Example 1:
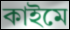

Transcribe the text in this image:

কাইমে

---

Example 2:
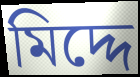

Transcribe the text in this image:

মিদ্দে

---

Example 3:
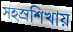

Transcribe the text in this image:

সহস্রশিখায়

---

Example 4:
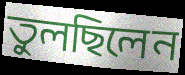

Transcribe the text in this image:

তুলছিলেন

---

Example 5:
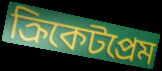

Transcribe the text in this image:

ক্রিকেটপ্রেম